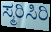
ಸ್ಮರಿಸಿರಿ